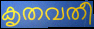
കൃതവതീ